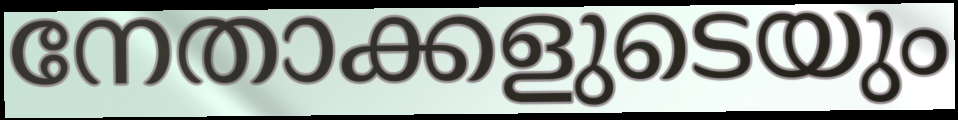
നേതാക്കളുടെയും